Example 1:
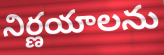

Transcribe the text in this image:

నిర్ణయాలను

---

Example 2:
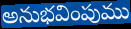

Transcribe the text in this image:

అనుభవింపుము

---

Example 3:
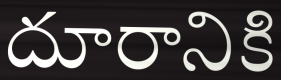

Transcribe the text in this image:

దూరానికి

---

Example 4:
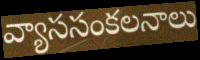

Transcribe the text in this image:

వ్యాససంకలనాలు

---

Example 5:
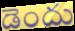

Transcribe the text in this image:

డెందు